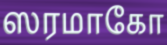
ஸரமாகோ